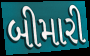
બીમારી